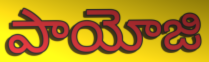
పాయోజి